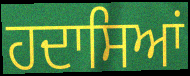
ਹਦਾਸਿਆਂ